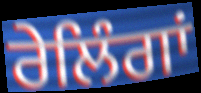
ਰੇਲਿੰਗਾਂ